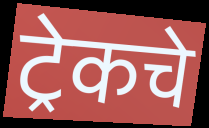
ट्रेकचे